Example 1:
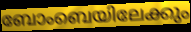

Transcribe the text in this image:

ബോംബെയിലേക്കും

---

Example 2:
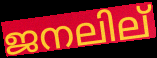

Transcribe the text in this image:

ജനലില്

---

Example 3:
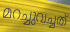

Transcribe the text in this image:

മറച്ചുവച്ചത്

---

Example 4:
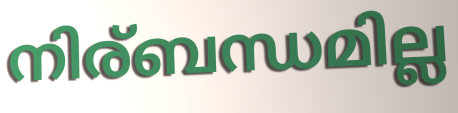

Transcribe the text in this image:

നിര്ബന്ധമില്ല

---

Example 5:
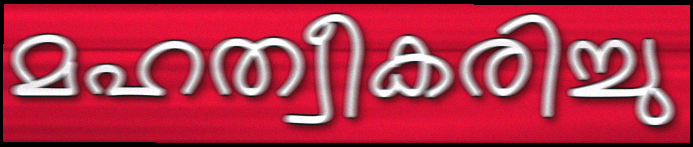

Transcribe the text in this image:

മഹത്വീകരിച്ചു